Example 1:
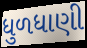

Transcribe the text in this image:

ધુળધાણી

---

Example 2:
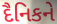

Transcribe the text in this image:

દૈનિકને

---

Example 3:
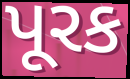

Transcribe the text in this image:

પૂરક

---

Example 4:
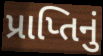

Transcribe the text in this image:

પ્રાપ્તિનું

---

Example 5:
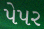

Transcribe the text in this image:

પેપર